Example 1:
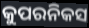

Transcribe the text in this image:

କୁପରନିକସ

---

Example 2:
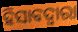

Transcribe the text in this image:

ହିସାବଦ୍ଵାରା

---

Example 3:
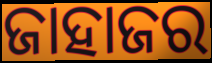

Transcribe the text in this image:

ଜାହାଜର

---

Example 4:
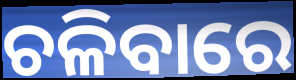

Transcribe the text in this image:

ଚଳିବାରେ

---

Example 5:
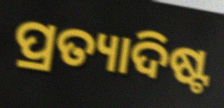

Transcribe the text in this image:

ପ୍ରତ୍ୟାଦିଷ୍ଟ